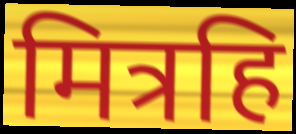
मित्रहि